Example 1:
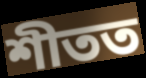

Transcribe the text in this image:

শীতত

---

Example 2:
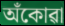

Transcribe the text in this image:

অঁকোৱা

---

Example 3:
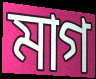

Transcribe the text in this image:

মাগ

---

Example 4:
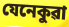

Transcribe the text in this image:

যেনেকুৱা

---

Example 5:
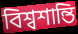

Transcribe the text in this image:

বিশ্বশান্তি